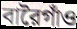
বারৈগাঁও